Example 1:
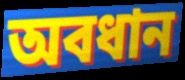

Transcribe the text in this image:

অবধান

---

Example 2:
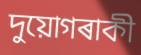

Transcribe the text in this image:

দুয়োগৰাকী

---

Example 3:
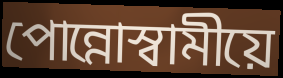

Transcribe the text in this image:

পোন্নোস্বামীয়ে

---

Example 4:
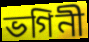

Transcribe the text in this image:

ভগিনী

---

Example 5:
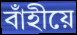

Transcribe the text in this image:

বাঁহীয়ে